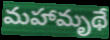
మహామృథే